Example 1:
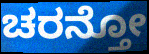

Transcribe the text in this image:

ಚರನ್ತೋ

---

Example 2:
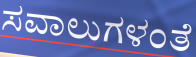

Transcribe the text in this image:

ಸವಾಲುಗಳಂತೆ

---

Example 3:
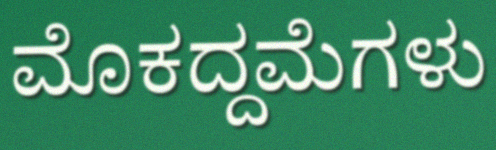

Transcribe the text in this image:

ಮೊಕದ್ದಮೆಗಳು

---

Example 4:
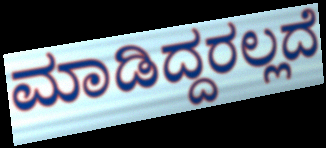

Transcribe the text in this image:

ಮಾಡಿದ್ದರಲ್ಲದೆ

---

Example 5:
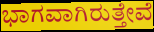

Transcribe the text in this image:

ಭಾಗವಾಗಿರುತ್ತೇವೆ